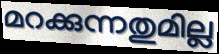
മറക്കുന്നതുമില്ല